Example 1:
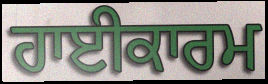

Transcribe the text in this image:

ਹਾਈਕਾਰਮ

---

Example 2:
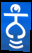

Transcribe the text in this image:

ਨੂਂੰ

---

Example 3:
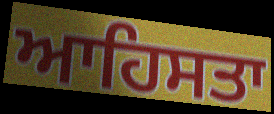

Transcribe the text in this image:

ਆਹਿਸਤਾ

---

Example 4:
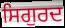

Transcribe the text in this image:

ਸਿਗੁਰਦ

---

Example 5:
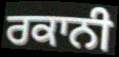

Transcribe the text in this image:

ਰਕਾਨੀ